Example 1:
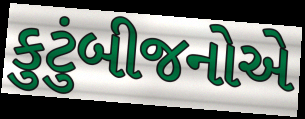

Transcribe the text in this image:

કુટુંબીજનોએ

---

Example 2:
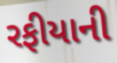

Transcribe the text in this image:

રફીયાની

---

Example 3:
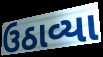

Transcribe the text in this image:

ઉઠાવ્યા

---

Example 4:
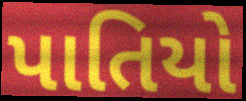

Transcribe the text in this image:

પાતિયો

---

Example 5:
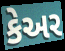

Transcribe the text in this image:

કેઅર